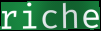
riche